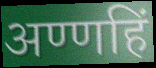
अण्णहिं